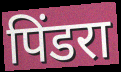
पिंडरा